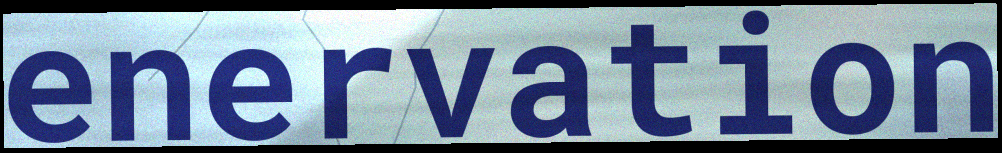
enervation